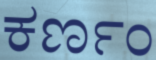
ಕರ್ಣಂ